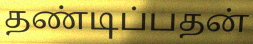
தண்டிப்பதன்